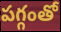
పగ్గంతో